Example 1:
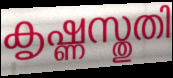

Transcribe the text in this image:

കൃഷ്ണസ്തുതി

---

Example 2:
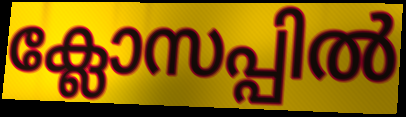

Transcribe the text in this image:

ക്ലോസപ്പിൽ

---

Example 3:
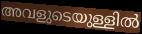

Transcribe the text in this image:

അവളുടെയുള്ളിൽ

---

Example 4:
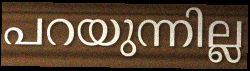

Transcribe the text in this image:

പറയുന്നില്ല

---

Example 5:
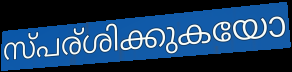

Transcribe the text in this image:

സ്പര്ശിക്കുകയോ